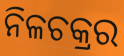
ନିଳଚକ୍ରର